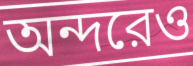
অন্দরেও